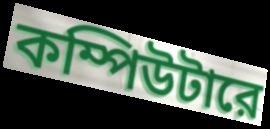
কম্পিউটারে